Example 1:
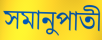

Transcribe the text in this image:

সমানুপাতী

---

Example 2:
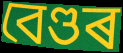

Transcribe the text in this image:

বেণ্ডৰ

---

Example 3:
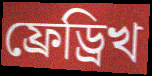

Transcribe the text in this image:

ফ্ৰেড্ৰিখ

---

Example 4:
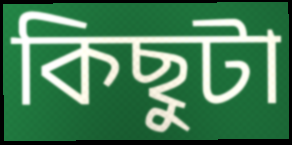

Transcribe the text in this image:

কিছুটা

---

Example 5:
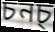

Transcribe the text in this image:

চনচ্